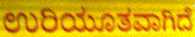
ಉರಿಯೂತವಾಗಿದೆ